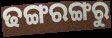
ଢଙ୍ଗରଙ୍ଗରୁ